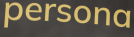
persona